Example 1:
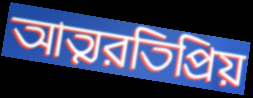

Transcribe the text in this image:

আত্মরতিপ্রিয়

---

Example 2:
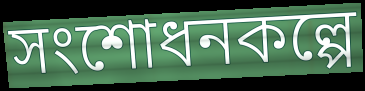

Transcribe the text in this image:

সংশোধনকল্পে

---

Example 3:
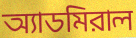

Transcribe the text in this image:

অ্যাডমিরাল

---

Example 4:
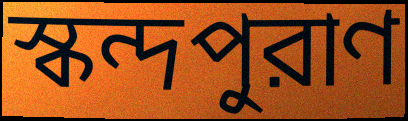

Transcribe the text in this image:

স্কন্দপুরাণ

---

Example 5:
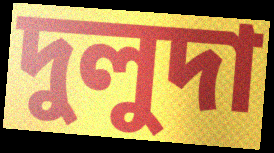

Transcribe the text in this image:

দুলুদা